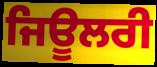
ਜਿਊਲਰੀ